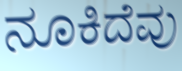
ನೂಕಿದೆವು